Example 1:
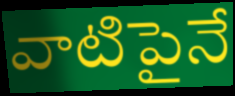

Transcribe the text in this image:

వాటిపైనే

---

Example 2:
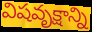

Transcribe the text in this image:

విషవృక్షాన్ని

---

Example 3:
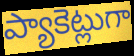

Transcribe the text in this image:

ప్యాకెట్లుగా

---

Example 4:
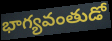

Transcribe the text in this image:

భాగ్యవంతుడో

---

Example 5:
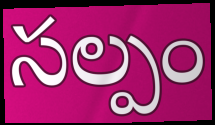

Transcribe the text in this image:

సల్పం